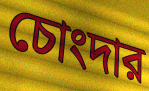
চোংদার